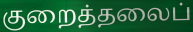
குறைத்தலைப்